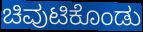
ಚಿವುಟಿಕೊಂಡು